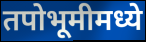
तपोभूमीमध्ये